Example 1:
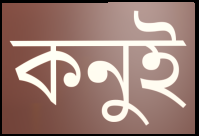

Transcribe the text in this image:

কনুই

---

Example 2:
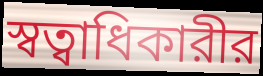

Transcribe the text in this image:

স্বত্বাধিকারীর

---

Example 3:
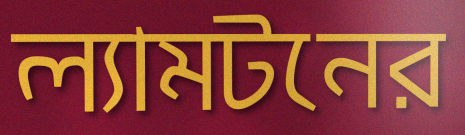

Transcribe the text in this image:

ল্যামটনের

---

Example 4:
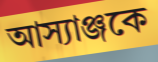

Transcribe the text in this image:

আস্যাঞ্জকে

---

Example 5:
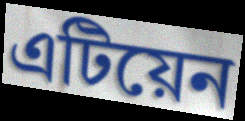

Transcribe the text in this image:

এটিয়েন